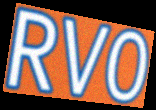
RVO